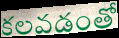
కలవడంతో